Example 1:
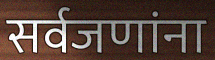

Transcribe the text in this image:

सर्वजणांना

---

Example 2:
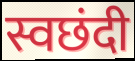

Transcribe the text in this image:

स्वछंदी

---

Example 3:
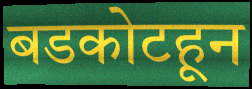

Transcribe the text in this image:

बडकोटहून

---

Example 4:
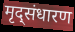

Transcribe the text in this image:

मृद्संधारण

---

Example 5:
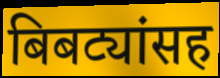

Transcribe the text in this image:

बिबट्यांसह